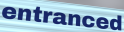
entranced